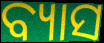
ବ୍ୟାସ